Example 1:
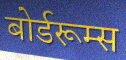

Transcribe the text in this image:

बोर्डरूम्स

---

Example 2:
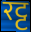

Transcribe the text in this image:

रट्ट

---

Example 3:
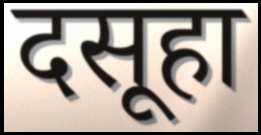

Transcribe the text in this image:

दसूहा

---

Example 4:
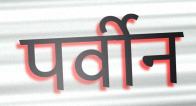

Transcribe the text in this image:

पर्वीन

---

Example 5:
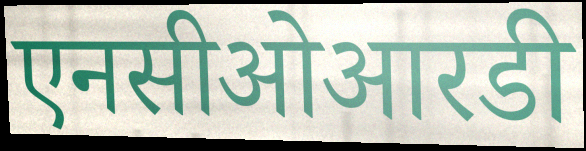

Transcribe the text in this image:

एनसीओआरडी